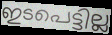
ഇടപെട്ടില്ല